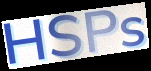
HSPs